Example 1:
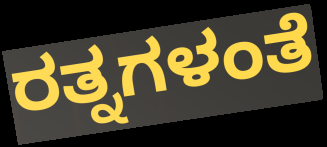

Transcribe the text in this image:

ರತ್ನಗಳಂತೆ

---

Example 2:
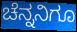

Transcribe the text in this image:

ಚೆನ್ನನಿಗೂ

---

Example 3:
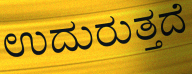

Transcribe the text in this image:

ಉದುರುತ್ತದೆ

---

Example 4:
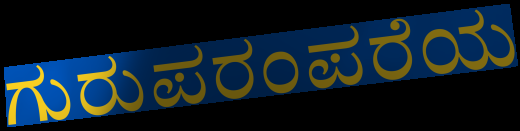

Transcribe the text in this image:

ಗುರುಪರಂಪರೆಯ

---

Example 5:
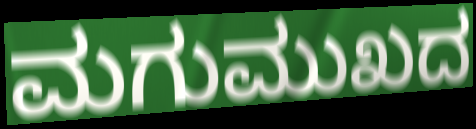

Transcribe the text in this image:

ಮಗುಮುಖದ